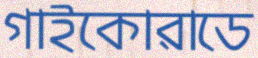
গাইকোৱাডে